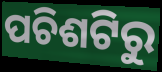
ପଚିଶଟିରୁ